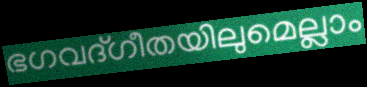
ഭഗവദ്ഗീതയിലുമെല്ലാം